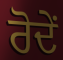
ਰੋਦੇਂ